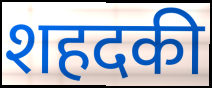
शहदकी